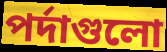
পর্দাগুলো